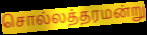
சொல்லத்தரமன்று